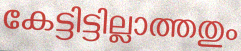
കേട്ടിട്ടില്ലാത്തതും